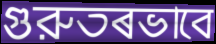
গুৰুতৰভাবে